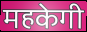
महकेगी